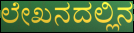
ಲೇಖನದಲ್ಲಿನ